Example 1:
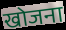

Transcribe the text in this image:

खोजना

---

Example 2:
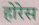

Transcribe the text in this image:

होरेस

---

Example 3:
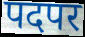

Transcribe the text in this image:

पदपर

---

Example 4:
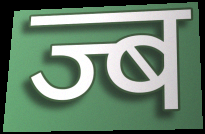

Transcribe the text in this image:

ज्ब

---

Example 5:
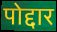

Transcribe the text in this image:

पोद्दार